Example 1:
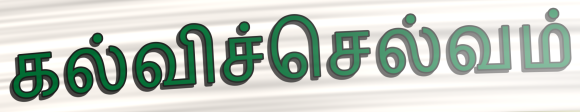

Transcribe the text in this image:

கல்விச்செல்வம்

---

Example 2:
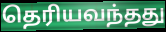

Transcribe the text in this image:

தெரியவந்தது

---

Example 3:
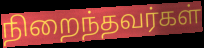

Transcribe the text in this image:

நிறைந்தவர்கள்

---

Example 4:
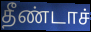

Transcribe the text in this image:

தீண்டாச்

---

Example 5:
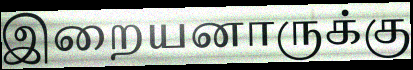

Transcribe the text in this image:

இறையனாருக்கு